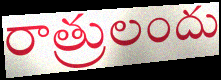
రాత్రులందు